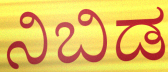
ನಿಬಿಡ